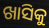
ଖାସିକୁ